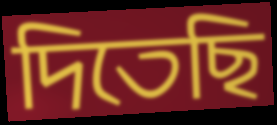
দিতেছি